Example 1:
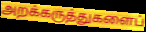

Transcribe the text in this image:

அறக்கருத்துகளைப்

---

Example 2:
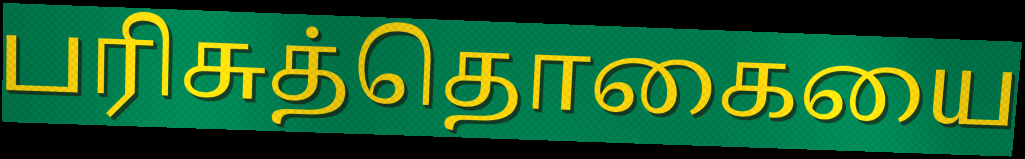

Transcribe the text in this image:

பரிசுத்தொகையை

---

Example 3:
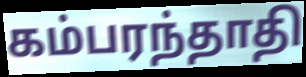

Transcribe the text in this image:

கம்பரந்தாதி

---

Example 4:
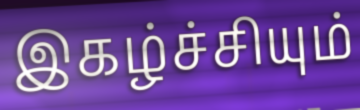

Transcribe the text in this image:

இகழ்ச்சியும்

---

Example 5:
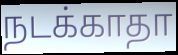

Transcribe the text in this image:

நடக்காதா